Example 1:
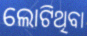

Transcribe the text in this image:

ଲୋଟିଥିବା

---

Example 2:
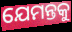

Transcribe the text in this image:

ଯେମନ୍ତକୁ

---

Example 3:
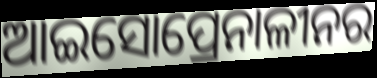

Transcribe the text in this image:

ଆଇସୋପ୍ରେନାଳୀନର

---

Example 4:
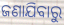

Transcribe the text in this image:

ଜଣାଯିବାରୁ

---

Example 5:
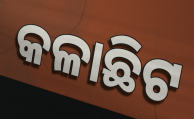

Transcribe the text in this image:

କଳାଛିଟ